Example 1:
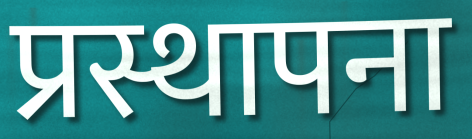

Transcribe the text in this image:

प्रस्थापना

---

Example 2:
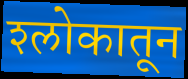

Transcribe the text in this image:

श्लोकातून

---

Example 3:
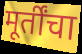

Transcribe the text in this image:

मूर्तींचा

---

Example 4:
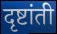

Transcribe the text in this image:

दृष्टांती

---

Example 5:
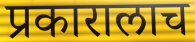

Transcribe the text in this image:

प्रकारालाच